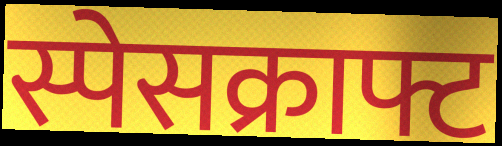
स्‍पेसक्राफ्ट